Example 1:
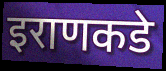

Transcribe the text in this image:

इराणकडे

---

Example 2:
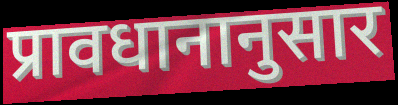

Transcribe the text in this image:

प्रावधानानुसार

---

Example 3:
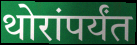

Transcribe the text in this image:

थोरांपर्यंत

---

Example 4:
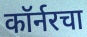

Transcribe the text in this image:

कॉर्नरचा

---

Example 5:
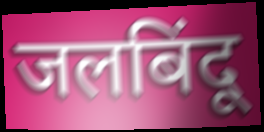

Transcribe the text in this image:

जलबिंदू